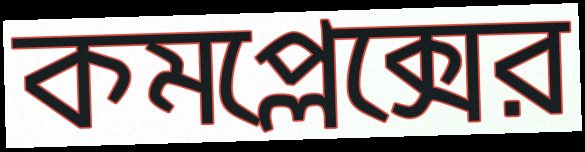
কমপ্লেক্সের